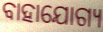
ବାହାଯୋଗ୍ୟ